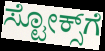
ಸ್ಟೋಕ್ಸ್‌ಗೆ